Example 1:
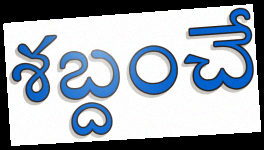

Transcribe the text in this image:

శబ్దంచే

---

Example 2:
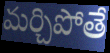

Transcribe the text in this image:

మర్చిపోతే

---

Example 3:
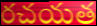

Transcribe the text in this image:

రచయత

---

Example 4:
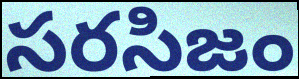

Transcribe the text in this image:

సరసిజం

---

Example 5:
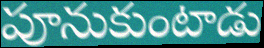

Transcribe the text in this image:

పూనుకుంటాడు